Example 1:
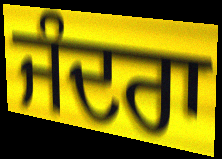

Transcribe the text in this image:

ਜੰਦਰਾ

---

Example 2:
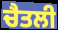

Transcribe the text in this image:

ਚੈਤਲੀ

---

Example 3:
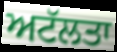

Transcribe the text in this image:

ਅਟੱਲਤਾ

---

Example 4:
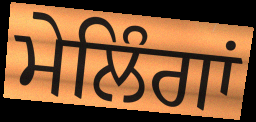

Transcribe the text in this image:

ਮੇਲਿੰਗਾਂ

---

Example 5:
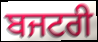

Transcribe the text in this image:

ਬਜਟਰੀ